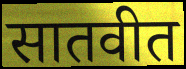
सातवीत